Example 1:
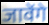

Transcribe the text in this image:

जावेंगे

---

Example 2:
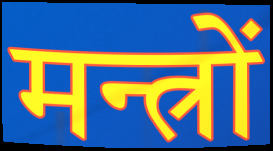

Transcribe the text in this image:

मन्त्रों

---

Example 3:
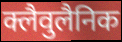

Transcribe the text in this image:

क्लैवुलैनिक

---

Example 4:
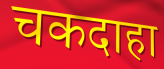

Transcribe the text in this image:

चकदाहा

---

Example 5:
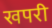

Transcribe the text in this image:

खपरी